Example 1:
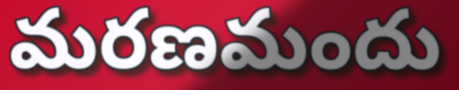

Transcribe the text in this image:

మరణమందు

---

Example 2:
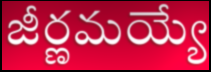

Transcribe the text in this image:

జీర్ణమయ్యే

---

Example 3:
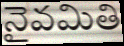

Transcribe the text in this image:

నైవమితి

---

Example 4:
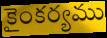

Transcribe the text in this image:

కైంకర్యము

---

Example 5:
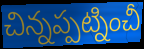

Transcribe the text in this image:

చిన్నప్పట్నించీ